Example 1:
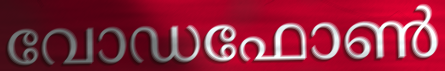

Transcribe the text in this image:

വോഡഫോൺ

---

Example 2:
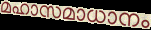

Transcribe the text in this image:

മഹാസമാധാനം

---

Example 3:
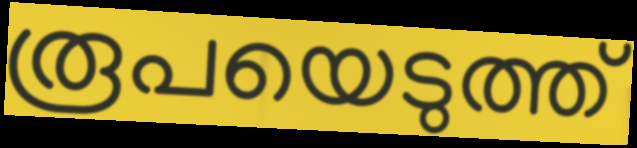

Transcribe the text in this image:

രൂപയെടുത്ത്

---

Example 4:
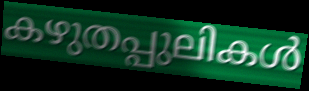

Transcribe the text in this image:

കഴുതപ്പുലികൾ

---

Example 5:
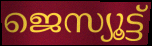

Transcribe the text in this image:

ജെസ്യൂട്ട്